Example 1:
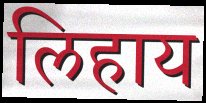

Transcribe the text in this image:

लिहाय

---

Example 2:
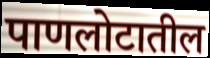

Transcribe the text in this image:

पाणलोटातील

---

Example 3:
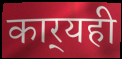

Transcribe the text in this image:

कार्यही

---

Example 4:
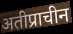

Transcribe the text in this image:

अतीप्राचीन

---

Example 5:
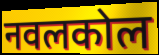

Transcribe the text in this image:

नवलकोल